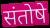
संतोषे